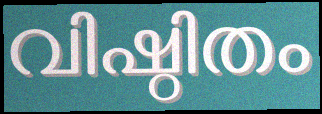
വിഷ്ഠിതം